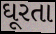
ઘૂરતા